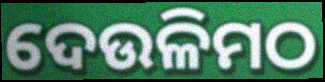
ଦେଉଳିମଠ